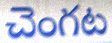
చెంగట